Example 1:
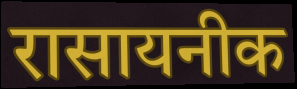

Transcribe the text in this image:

रासायनीक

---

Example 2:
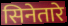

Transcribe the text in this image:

सिनेतारे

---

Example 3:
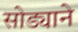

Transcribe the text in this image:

सोड्याने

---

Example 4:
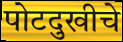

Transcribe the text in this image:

पोटदुखीचे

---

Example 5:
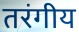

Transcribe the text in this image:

तरंगीय